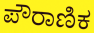
ಪೌರಾಣಿಕ